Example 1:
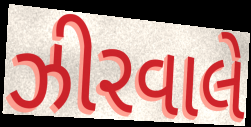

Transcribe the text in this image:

ઝીરવાલે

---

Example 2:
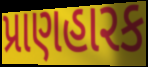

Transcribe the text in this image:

પ્રાણહારક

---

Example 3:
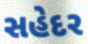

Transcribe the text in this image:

સહેદર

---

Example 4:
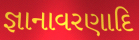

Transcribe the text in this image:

જ્ઞાનાવરણાદિ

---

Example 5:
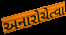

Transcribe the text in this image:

અનારોચેત્વા